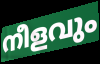
നീളവും